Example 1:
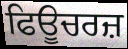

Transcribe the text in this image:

ਫਿਊਚਰਜ਼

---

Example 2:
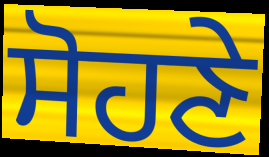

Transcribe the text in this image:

ਸੋਹਣੇ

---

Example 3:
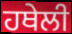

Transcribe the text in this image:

ਹਥੇਲੀ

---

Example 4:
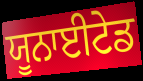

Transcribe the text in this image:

ਯੂਨਾਈਟੇਡ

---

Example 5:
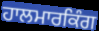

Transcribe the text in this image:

ਹਾਲਮਾਰਕਿੰਗ